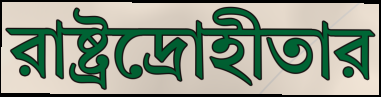
রাষ্ট্রদ্রোহীতার